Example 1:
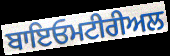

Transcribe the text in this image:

ਬਾਇਓਮਟੀਰੀਅਲ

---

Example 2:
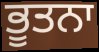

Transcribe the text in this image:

ਭੂਤਨਾ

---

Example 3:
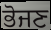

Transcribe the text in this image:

ਭੋਜਣ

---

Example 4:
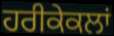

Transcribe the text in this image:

ਹਰੀਕੇਕਲਾਂ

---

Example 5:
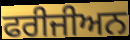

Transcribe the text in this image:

ਫਰੀਜੀਅਨ